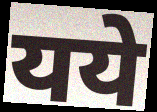
यये